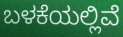
ಬಳಕೆಯಲ್ಲಿವೆ